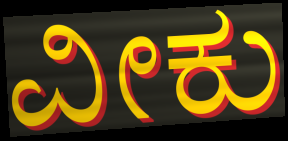
ವೀಕು